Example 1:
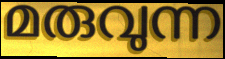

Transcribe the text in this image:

മരുവുന്ന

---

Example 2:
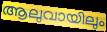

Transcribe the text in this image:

ആലുവായിലും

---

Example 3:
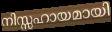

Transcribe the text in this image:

നിസ്സഹായമായി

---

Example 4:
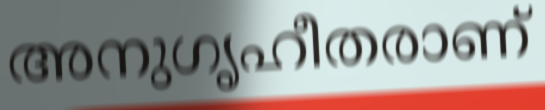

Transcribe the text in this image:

അനുഗൃഹീതരാണ്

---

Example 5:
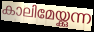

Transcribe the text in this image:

കാലിമേയ്ക്കുന്ന